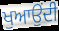
ਖੁਆਉਂਦੀ